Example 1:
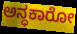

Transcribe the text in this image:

ಅನ್ಧಕಾರೋ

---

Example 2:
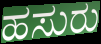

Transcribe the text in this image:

ಹಸುರು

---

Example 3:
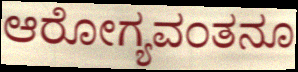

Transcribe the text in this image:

ಆರೋಗ್ಯವಂತನೂ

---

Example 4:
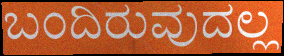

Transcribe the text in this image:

ಬಂದಿರುವುದಲ್ಲ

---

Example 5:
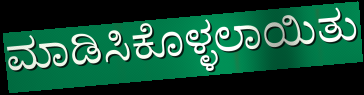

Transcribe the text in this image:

ಮಾಡಿಸಿಕೊಳ್ಳಲಾಯಿತು